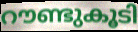
റൗണ്ടുകൂടി